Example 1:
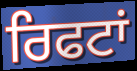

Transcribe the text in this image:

ਰਿਫਟਾਂ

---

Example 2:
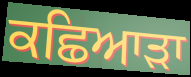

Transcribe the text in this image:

ਕਛਿਆੜਾ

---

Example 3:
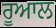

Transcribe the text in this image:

ਰੂਆਲ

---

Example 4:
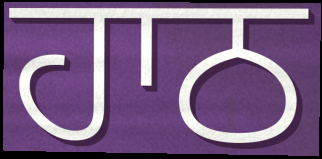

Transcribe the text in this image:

ਹਾਠ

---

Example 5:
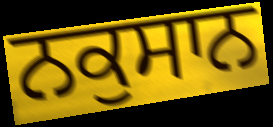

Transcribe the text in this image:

ਨਕੁਸਾਨ